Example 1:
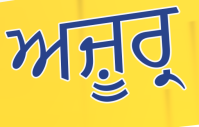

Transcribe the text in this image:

ਅਜ਼ੂਰ੍ਰ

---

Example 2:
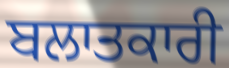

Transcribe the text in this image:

ਬਲਾਤਕਾਰੀ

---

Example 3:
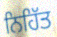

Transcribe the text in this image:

ਨਿਹਿੱਤ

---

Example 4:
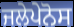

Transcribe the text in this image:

ਜਲੇਪੇਨੋਸ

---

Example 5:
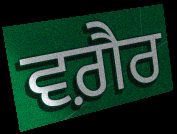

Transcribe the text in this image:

ਵਗ਼ੈਰ